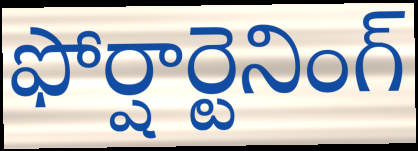
ఫోర్షార్టెనింగ్